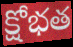
క్షోభత